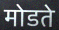
मोडते